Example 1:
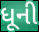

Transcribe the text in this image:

ધૂની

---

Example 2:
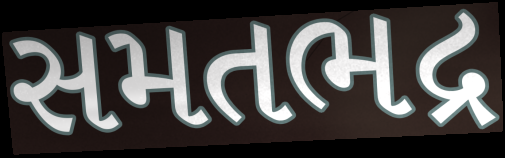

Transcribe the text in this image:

સમતભદ્ર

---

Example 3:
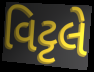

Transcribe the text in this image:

વિટ્ટલે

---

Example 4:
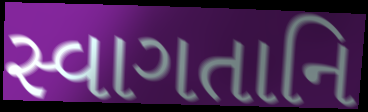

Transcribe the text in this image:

સ્વાગતાનિ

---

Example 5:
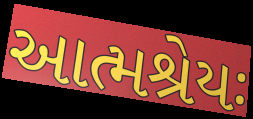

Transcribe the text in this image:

આત્મશ્રેયઃ